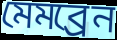
মেমব্রেন